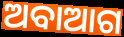
ଅବାଆଗ